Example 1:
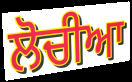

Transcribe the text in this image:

ਲੋਚੀਆ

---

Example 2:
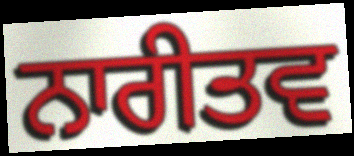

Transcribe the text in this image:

ਨਾਰੀਤਵ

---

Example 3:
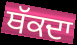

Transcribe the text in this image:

ਥੱਕਦਾ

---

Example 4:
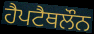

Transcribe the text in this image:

ਹੈਪਟੈਥਲੌਨ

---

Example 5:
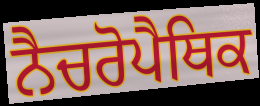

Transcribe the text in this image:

ਨੈਚਰੋਪੈਥਿਕ